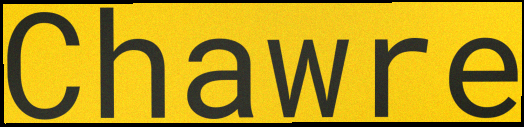
Chawre